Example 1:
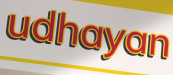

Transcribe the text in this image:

udhayan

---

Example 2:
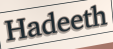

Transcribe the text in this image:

Hadeeth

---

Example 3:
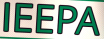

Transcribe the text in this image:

IEEPA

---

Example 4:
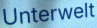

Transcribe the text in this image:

Unterwelt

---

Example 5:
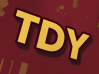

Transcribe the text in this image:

TDY